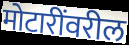
मोटारींवरील